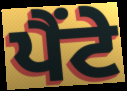
ਪੈਂਟੇ